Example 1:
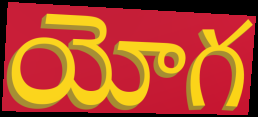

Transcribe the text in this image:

యోగ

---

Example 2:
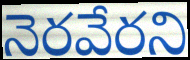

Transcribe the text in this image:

నెరవేరని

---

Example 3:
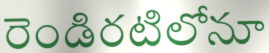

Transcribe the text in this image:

రెండిరటిలోనూ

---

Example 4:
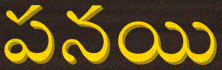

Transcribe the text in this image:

పనయి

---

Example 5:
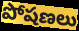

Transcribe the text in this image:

పోషణలు